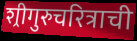
श्रीगुरुचरित्राची